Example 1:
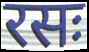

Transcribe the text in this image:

रसः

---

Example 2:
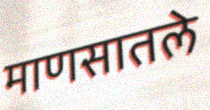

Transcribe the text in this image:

माणसातले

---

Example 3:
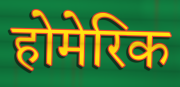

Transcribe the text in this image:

होमेरिक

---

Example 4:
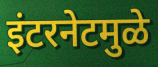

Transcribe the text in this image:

इंटरनेटमुळे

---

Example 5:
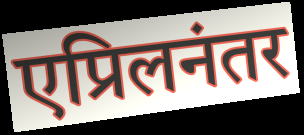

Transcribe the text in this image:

एप्रिलनंतर